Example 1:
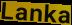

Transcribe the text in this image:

Lanka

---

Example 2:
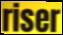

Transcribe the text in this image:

riser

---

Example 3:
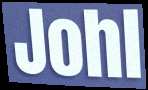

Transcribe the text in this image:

Johl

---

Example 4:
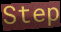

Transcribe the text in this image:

Step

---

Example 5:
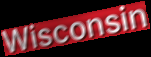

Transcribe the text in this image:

Wisconsin